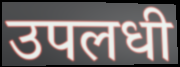
उपलधी